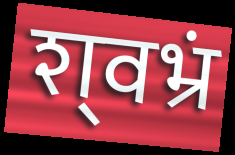
श्वभ्रं